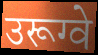
उरूग्वे